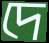
দে